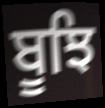
ਬੂਝਿ